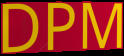
DPM